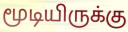
மூடியிருக்கு